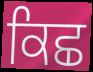
ਕਿਛ